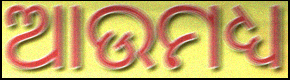
ଆଉମଧ୍ୟ